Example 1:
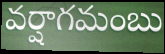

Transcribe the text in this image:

వర్షాగమంబు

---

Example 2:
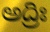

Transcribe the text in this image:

అద్రిః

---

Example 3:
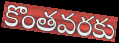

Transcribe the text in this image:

కొంతవరకు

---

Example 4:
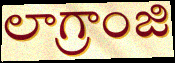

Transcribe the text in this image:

లాగ్రాంజి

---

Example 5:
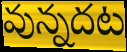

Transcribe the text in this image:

వున్నదట